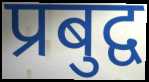
प्रबुद्व